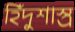
হিঁদুশাস্ত্র